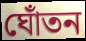
ঘোঁতন